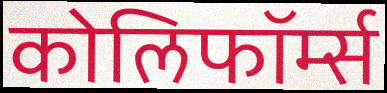
कोलिफॉर्म्स